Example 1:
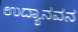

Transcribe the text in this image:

ಉದ್ಯಾನವನ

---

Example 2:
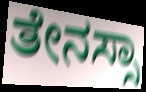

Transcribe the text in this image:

ತೇನಸ್ಸಾ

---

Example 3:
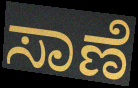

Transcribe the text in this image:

ಸಾಣೆ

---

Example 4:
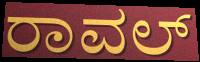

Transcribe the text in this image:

ರಾವಲ್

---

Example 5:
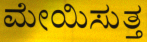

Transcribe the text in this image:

ಮೇಯಿಸುತ್ತ